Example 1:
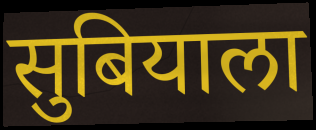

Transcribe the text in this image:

सुबियाला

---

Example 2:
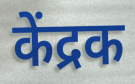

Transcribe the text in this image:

केंद्रक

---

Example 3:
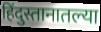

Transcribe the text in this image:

हिंदुस्तानातल्या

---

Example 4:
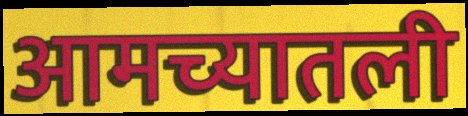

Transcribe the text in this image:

आमच्यातली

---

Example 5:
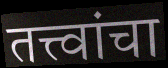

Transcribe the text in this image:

तत्त्वांचा